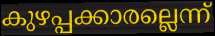
കുഴപ്പക്കാരല്ലെന്ന്